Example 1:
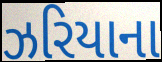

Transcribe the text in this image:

ઝરિયાના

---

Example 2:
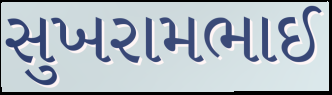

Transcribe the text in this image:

સુખરામભાઈ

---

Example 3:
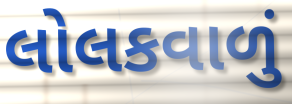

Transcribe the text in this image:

લોલકવાળું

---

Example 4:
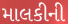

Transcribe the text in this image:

માલકીની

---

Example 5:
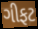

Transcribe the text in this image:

ગીફટ